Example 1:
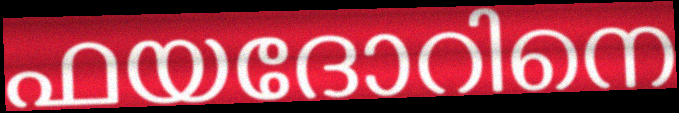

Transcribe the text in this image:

ഫയദോറിനെ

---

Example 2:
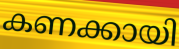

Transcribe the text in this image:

കണക്കായി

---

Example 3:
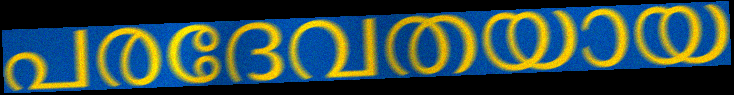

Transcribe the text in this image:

പരദേവതയായ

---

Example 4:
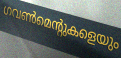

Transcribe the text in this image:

ഗവൺമെന്റുകളെയും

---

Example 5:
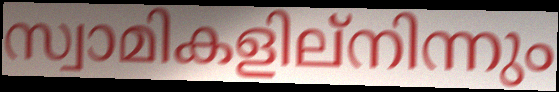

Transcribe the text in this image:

സ്വാമികളില്നിന്നും